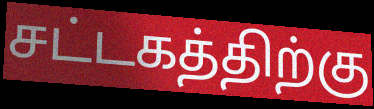
சட்டகத்திற்கு